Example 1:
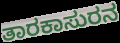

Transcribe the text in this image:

ತಾರಕಾಸುರನ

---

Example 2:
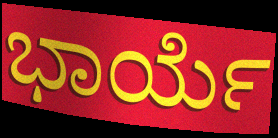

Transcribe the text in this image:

ಭಾರ್ಯೆ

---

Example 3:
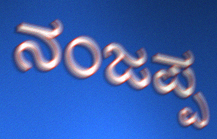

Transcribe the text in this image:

ನಂಜಪ್ಪ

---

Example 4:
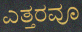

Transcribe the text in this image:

ಎತ್ತರವೂ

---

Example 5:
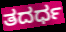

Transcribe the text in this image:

ತದರ್ಧ